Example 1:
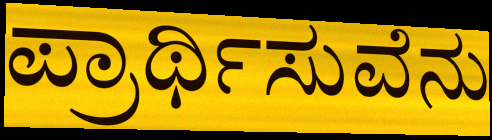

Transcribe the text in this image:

ಪ್ರಾರ್ಥಿಸುವೆನು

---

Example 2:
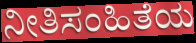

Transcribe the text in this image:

ನೀತಿಸಂಹಿತೆಯ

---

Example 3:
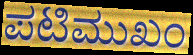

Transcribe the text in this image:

ಪಟಿಮುಖಂ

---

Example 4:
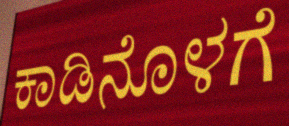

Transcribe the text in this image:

ಕಾಡಿನೊಳಗೆ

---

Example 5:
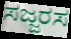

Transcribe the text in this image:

ಸಜ್ಜರಸ